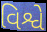
વિશ્વે